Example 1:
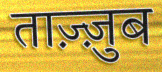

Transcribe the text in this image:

ताज़्ज़ुब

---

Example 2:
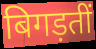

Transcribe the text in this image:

बिगड़तीं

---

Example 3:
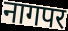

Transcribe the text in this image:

नागपर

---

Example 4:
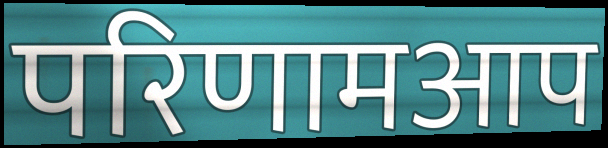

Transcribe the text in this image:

परिणामआप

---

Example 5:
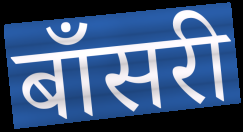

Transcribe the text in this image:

बाँसरी